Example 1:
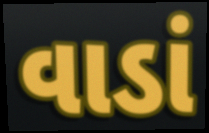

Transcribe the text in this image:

વાડાં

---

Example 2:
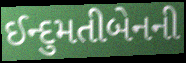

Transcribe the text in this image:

ઈન્દુમતીબેનની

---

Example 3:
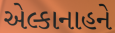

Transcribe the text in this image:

એલ્કાનાહને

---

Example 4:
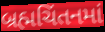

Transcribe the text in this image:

બ્રહ્મચિંતનમાં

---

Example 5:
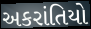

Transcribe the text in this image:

અકરાંતિયો